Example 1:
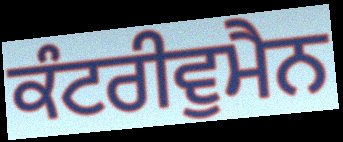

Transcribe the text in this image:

ਕੰਟਰੀਵੁਮੈਨ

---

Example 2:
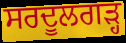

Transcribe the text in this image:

ਸਰਦੂਲਗੜ੍ਹ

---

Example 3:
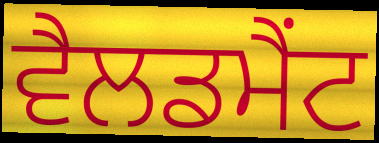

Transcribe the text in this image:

ਵੈਲਡਮੈਂਟ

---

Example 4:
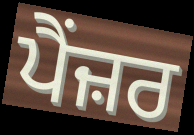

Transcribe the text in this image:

ਪੈਂਜ਼ਰ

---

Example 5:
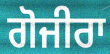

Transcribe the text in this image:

ਗੋਜੀਰਾ